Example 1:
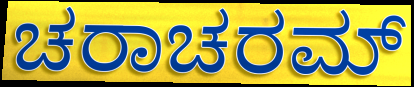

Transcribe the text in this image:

ಚರಾಚರಮ್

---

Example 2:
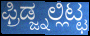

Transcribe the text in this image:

ಫ್ರಿಡ್ಜ್ನಲ್ಲಿಟ್ಟ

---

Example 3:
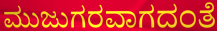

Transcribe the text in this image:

ಮುಜುಗರವಾಗದಂತೆ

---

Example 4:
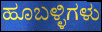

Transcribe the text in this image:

ಹೂಬಳ್ಳಿಗಳು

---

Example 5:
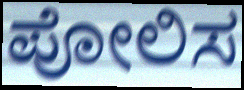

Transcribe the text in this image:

ಪೋಲಿಸ